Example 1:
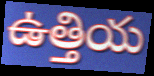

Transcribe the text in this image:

ఉత్తియ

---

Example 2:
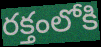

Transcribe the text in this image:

రక్తంలోకి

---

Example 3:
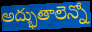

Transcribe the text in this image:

అద్భుతాలెన్నో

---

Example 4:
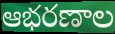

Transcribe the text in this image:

ఆభరణాల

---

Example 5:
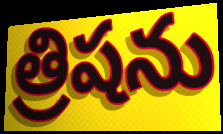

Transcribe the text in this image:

త్రిషను